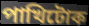
পাখিটোক